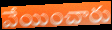
వేయించారు